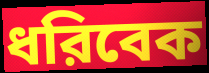
ধরিবেক